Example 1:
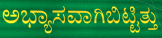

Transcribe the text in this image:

ಅಭ್ಯಾಸವಾಗಿಬಿಟ್ಟಿತ್ತು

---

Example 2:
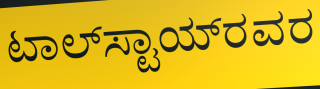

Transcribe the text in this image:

ಟಾಲ್‌ಸ್ಟಾಯ್‌ರವರ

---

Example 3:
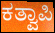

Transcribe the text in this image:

ಕತ್ವಾಪಿ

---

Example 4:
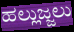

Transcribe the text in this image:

ಹಲ್ಲುಜ್ಜಲು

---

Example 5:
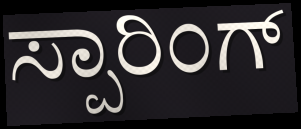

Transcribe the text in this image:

ಸ್ಪಾರಿಂಗ್